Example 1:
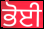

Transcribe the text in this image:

ਭੋਈ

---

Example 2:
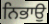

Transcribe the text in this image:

ਨਿਭਾਉ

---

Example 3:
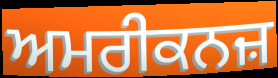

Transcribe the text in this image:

ਅਮਰੀਕਨਜ਼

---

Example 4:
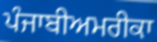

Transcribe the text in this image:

ਪੰਜਾਬੀਅਮਰੀਕਾ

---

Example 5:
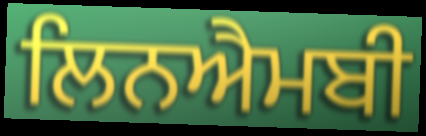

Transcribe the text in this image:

ਲਿਨਐਮਬੀ